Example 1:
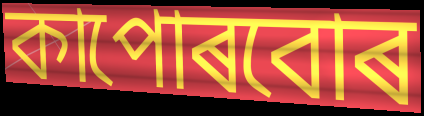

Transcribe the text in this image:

কাপোৰবোৰ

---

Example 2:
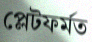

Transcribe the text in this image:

প্লেটফৰ্মত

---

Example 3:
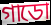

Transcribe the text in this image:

গাডো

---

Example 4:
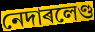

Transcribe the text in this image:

নেদাৰলেণ্ড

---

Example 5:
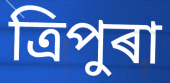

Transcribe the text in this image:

ত্ৰিপুৰা